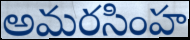
అమరసింహ